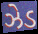
ઝેડ